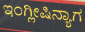
ಇಂಗ್ಲೀಷಿನ್ಯಾಗ